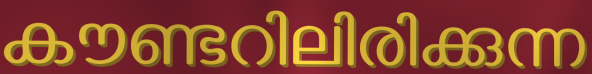
കൗണ്ടറിലിരിക്കുന്ന